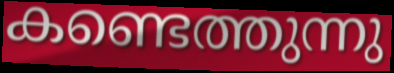
കണ്ടെത്തുന്നു